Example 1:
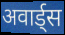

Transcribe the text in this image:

अवार्ड्स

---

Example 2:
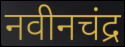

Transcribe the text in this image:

नवीनचंद्र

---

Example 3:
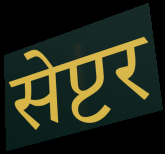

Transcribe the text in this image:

सेप्टर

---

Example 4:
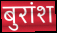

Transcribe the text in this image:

बुरांश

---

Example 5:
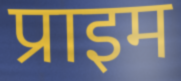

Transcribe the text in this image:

प्राइम